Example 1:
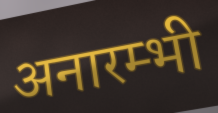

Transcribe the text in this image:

अनारम्भी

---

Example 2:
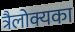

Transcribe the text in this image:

त्रैलोक्यका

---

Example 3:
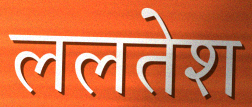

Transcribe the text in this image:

ललतेश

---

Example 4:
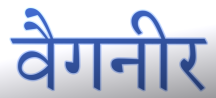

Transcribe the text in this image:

वैगनीर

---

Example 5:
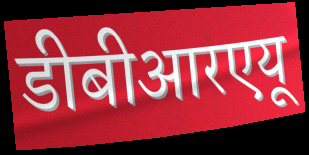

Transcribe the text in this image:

डीबीआरएयू